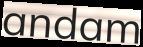
andam